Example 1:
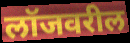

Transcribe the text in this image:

लॉजवरील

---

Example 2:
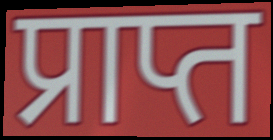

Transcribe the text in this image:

प्राप्त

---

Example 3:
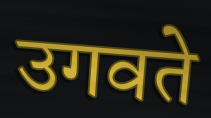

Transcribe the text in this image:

उगवते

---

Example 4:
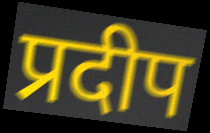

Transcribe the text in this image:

प्रदीप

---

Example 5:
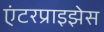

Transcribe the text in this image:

एंटरप्राइझेस